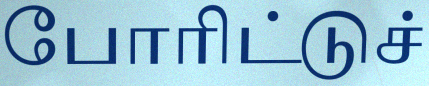
போரிட்டுச்